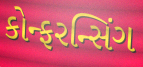
કોન્ફરન્સિંગ